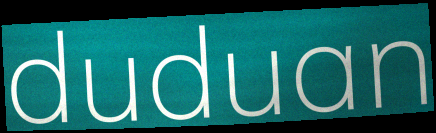
duduan